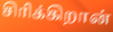
சிரிக்கிறான்